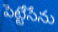
పెట్టేసేను